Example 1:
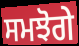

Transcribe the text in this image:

ਸਮਝੋਗੇ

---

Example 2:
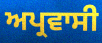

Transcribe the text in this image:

ਅਪ੍ਰਵਾਸੀ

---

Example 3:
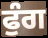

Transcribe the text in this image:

ਫੁੰਗ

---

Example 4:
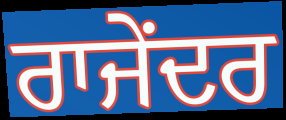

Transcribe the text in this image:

ਰਾਜੇਂਦਰ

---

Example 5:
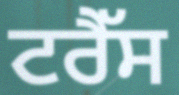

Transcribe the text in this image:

ਟਰੈੱਸ